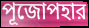
পূজোপহার